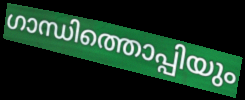
ഗാന്ധിത്തൊപ്പിയും